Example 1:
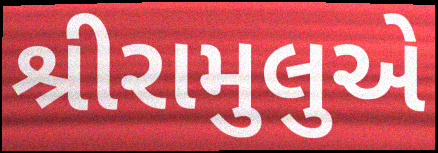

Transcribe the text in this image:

શ્રીરામુલુએ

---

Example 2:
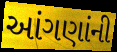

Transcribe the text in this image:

આંગણાંની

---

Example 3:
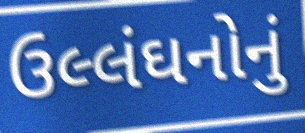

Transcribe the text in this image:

ઉલ્લંઘનોનું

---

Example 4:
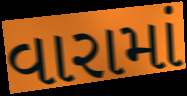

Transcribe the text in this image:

વારામાં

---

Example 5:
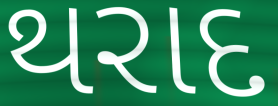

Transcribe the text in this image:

થરાદ